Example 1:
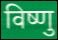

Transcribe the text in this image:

विष्णु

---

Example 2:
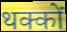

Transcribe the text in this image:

थक्कों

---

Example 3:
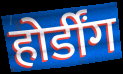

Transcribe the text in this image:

होर्डींग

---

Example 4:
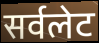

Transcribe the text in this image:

सर्वलेट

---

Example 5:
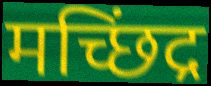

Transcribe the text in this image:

मच्छिंद्र